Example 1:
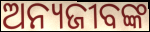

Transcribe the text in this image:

ଅନ୍ୟଜୀବଙ୍କ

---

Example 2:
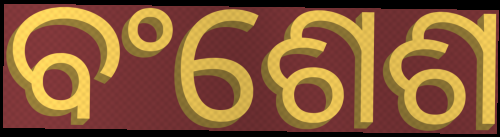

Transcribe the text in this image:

ବଂଶେଶ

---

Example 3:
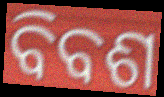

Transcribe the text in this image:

ବିବଶ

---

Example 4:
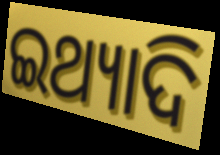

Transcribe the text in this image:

ଇଥ୍ୟାଦି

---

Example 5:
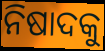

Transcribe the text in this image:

ନିଷାଦକୁ